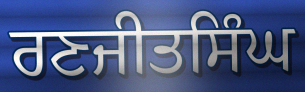
ਰਣਜੀਤਸਿੰਘ